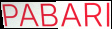
PABARI